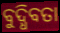
ବୁଦ୍ଧିବତା